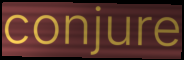
conjure